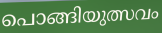
പൊങ്ങിയുത്സവം